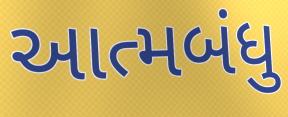
આત્મબંધુ